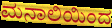
ಮನಾಲಿಯಿಂದ